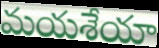
మయశేయా